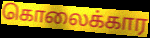
கொலைக்கார